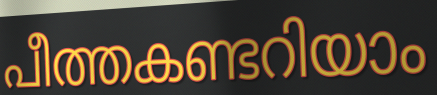
പീത്തകണ്ടറിയാം